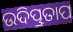
ଉଦିତ୍ପ୍ରତାପ